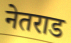
नेतराड